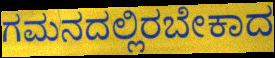
ಗಮನದಲ್ಲಿರಬೇಕಾದ